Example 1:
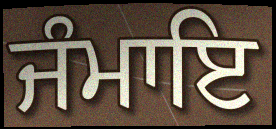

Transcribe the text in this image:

ਜੰਮਾਇ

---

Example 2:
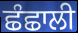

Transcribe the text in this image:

ਛੰਛਾਲੀ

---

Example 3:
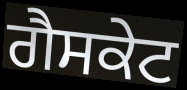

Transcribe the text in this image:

ਗੈਸਕੇਟ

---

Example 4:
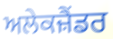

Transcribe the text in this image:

ਅਲੇਕਜ਼ੈਂਡਰ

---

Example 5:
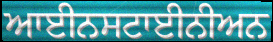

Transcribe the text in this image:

ਆਈਨਸਟਾਈਨੀਅਨ